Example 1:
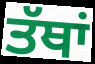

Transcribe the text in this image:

ਤੱਥਾਂ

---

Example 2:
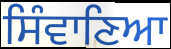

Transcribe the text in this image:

ਸਿੰਵਾਣਿਆ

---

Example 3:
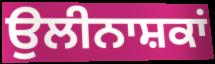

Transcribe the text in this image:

ਉਲੀਨਾਸ਼ਕਾਂ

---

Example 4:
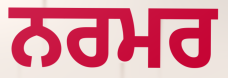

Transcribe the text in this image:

ਨਰਮਰ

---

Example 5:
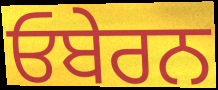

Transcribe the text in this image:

ਓਬੇਰਨ